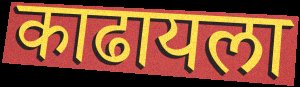
काढायला